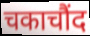
चकाचौंद